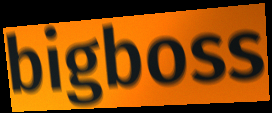
bigboss